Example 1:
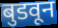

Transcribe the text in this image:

बुडवून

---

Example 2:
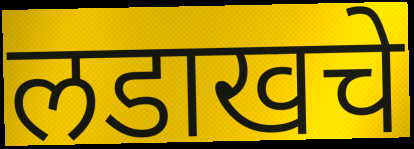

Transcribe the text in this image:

लडाखचे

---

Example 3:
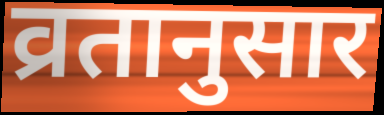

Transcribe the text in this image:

व्रतानुसार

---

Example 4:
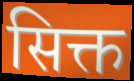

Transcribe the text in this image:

सिक्त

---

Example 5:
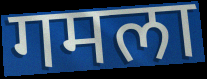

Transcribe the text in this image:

गमला